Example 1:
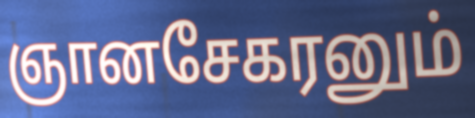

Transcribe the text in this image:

ஞானசேகரனும்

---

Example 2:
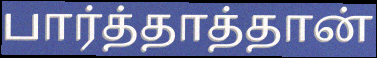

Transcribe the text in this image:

பார்த்தாத்தான்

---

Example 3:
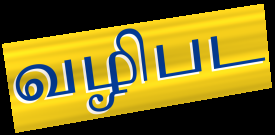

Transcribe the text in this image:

வழிபட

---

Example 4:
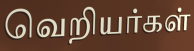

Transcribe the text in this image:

வெறியர்கள்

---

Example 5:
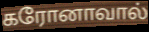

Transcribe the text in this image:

கரோனாவால்